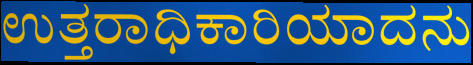
ಉತ್ತರಾಧಿಕಾರಿಯಾದನು